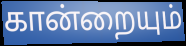
கான்றையும்